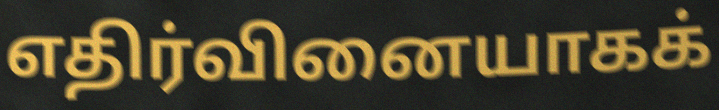
எதிர்வினையாகக்